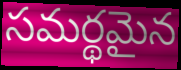
సమర్థమైన